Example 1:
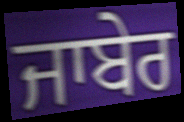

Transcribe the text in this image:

ਜਾਬੇਰ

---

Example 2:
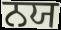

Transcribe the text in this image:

ਨਯ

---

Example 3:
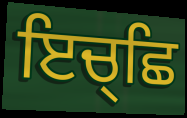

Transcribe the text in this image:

ਇਚ੍ਛਿ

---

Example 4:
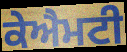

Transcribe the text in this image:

ਕੇਐਮਟੀ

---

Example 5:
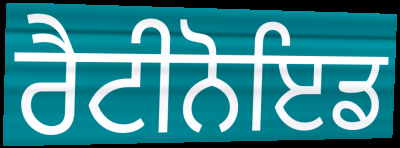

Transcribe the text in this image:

ਰੈਟੀਨੋਇਡ